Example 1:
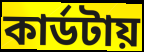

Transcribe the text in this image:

কার্ডটায়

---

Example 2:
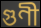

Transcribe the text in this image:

গুণী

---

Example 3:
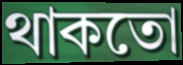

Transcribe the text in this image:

থাকতো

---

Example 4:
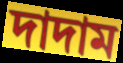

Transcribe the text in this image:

দাদাম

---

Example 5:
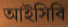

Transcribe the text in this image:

আইসিবি